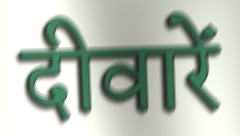
दीवारें